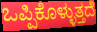
ಒಪ್ಪಿಕೊಳ್ಳುತ್ತದೆ